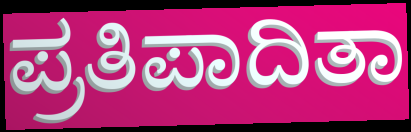
ಪ್ರತಿಪಾದಿತಾ